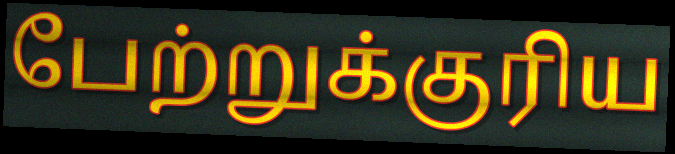
பேற்றுக்குரிய